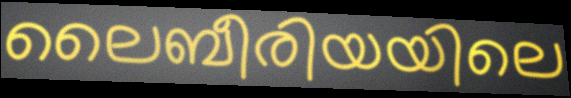
ലൈബീരിയയിലെ